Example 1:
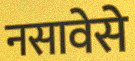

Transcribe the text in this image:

नसावेसे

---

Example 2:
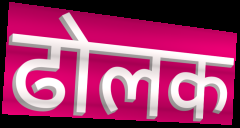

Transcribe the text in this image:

ढोलक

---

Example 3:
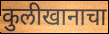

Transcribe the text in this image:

कुलीखानाचा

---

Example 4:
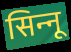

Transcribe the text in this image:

सिन्नू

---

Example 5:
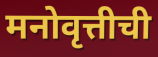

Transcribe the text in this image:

मनोवृत्तीची